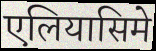
एलियासिमे